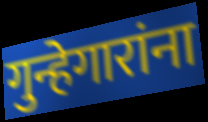
गुन्हेगारांना